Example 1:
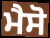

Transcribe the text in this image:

ਮੈਸੋ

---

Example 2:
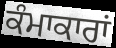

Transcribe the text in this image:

ਕੰਮਾਕਾਰਾਂ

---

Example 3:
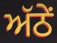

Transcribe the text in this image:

ਅੱਠੇਂ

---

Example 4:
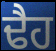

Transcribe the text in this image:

ਢੈਹ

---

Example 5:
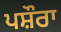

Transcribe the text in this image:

ਪਸ਼ੌਰਾ